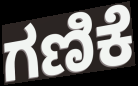
ಗಣಿಕೆ